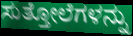
ಸುತ್ತೋಲೆಗಳನ್ನು